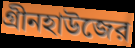
গ্রীনহাউজের